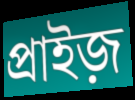
প্রাইজ়